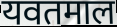
यवतमाल